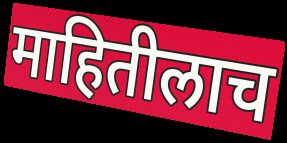
माहितीलाच